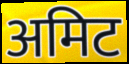
अमिट